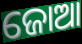
ଜୋଆ